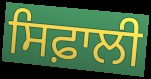
ਸਿਫ਼ਾਲੀ